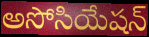
అసోసియేషన్